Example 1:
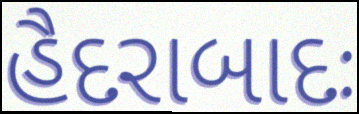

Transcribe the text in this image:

હૈદરાબાદઃ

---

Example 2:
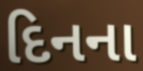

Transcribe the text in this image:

દિનના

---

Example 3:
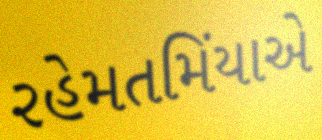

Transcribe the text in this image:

રહેમતમિંયાએ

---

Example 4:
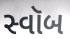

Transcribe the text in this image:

સ્વૉબ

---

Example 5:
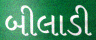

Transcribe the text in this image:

બીલાડી